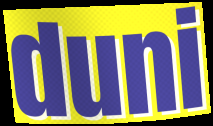
duni